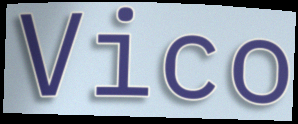
Vico